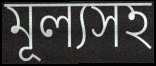
মূল্যসহ